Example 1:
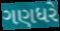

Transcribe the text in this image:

ગણધરે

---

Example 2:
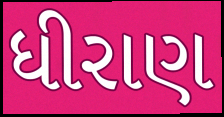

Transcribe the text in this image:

ધીરાણ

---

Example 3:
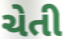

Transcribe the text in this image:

ચેતી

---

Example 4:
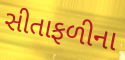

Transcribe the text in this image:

સીતાફળીના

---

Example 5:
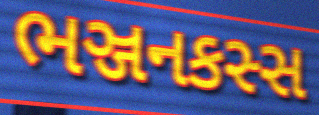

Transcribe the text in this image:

ભઞ્જનકસ્સ